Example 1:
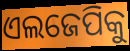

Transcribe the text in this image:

ଏଲଜେପିକୁ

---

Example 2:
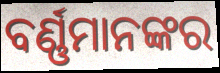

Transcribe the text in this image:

ବର୍ଣ୍ଣମାନଙ୍କର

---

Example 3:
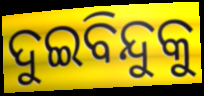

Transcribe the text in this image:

ଦୁଇବିନ୍ଦୁକୁ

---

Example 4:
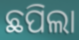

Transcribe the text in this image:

ଛପିଲା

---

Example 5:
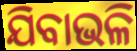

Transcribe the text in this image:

ଯିବାଭଳି